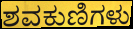
ಶವಕುಣಿಗಳು